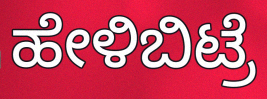
ಹೇಳಿಬಿಟ್ರೆ